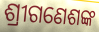
ଶ୍ରୀଗଣେଶଙ୍କ